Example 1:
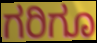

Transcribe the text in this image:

ಗರಿಗೂ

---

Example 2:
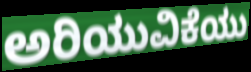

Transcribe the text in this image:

ಅರಿಯುವಿಕೆಯು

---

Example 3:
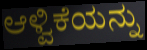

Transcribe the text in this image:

ಆಳ್ವಿಕೆಯನ್ನು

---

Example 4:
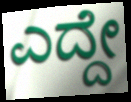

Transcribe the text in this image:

ಎದ್ದೇ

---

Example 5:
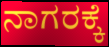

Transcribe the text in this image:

ನಾಗರಕ್ಕೆ